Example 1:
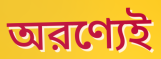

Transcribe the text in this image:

অরণ্যেই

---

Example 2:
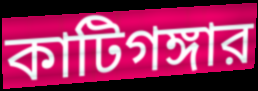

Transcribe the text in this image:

কাটিগঙ্গার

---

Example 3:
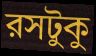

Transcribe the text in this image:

রসটুকু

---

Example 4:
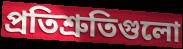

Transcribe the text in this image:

প্রতিশ্রুতিগুলো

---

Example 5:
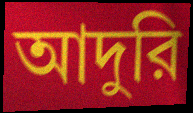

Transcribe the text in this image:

আদুরি